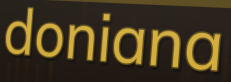
doniana